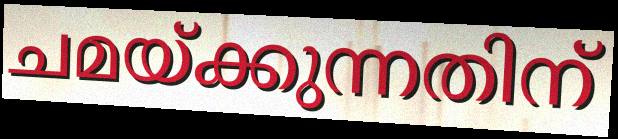
ചമയ്ക്കുന്നതിന്